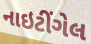
નાઇટીંગેલ